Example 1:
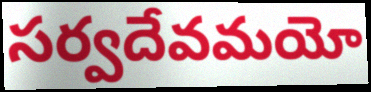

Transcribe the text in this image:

సర్వదేవమయో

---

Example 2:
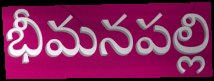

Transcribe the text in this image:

భీమనపల్లి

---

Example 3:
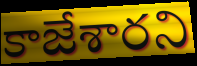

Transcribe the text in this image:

కాజేశారని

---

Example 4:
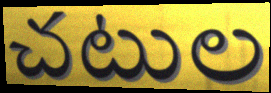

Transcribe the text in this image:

చటుల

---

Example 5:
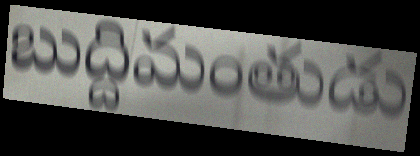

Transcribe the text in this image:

బుద్దిమంతుడు